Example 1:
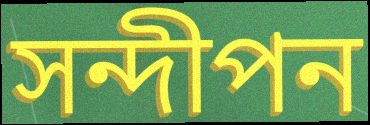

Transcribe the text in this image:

সন্দীপন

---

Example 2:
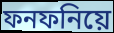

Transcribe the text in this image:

ফনফনিয়ে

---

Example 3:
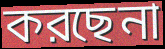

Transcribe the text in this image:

করছেনা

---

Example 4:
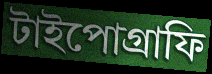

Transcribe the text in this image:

টাইপোগ্রাফি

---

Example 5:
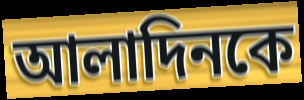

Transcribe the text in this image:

আলাদিনকে